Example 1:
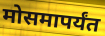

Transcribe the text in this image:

मोसमापर्यंत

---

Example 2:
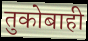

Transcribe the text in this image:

तुकोबाही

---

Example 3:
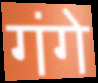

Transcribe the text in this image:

गंगे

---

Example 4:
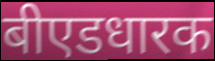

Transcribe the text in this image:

बीएडधारक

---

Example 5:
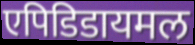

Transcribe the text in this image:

एपिडिडायमल